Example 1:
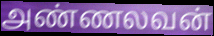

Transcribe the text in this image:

அண்ணலவன்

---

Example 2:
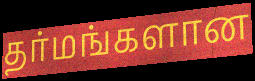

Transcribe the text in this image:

தர்மங்களான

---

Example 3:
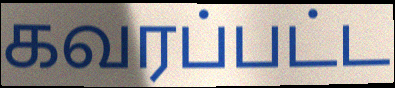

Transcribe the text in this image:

கவரப்பட்ட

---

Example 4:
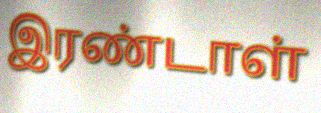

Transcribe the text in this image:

இரண்டாள்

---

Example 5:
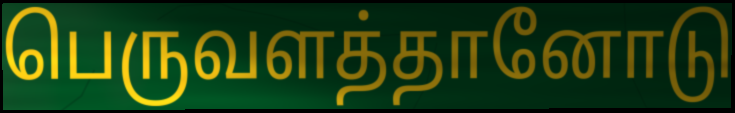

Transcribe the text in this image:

பெருவளத்தானோடு